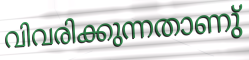
വിവരിക്കുന്നതാണു്